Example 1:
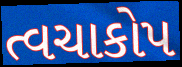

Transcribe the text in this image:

ત્વચાકોપ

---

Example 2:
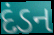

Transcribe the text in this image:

દંડન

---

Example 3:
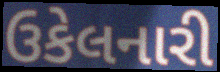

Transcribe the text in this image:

ઉકેલનારી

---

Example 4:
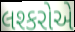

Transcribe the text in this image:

લશ્કરોએ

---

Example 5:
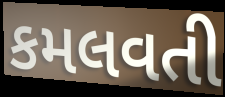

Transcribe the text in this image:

કમલવતી